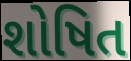
શોષિત